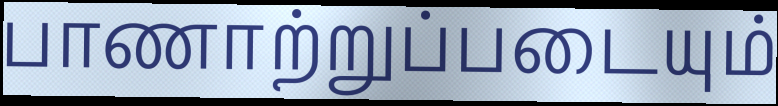
பாணாற்றுப்படையும்